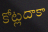
కోట్లదాకా